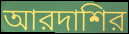
আরদাশির